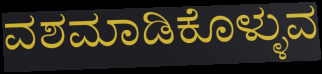
ವಶಮಾಡಿಕೊಳ್ಳುವ